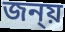
জন্য়